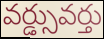
వర్డ్సువర్తు